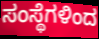
ಸಂಸ್ಥೆಗಳಿಂದ